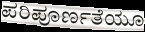
ಪರಿಪೂರ್ಣತೆಯೂ